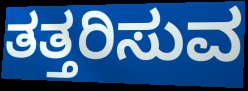
ತತ್ತರಿಸುವ